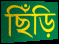
ছিঁড়ি